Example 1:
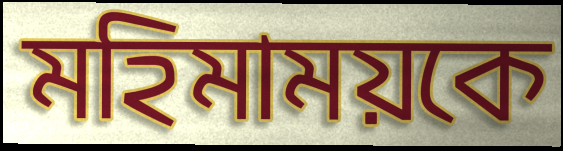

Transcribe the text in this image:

মহিমাময়কে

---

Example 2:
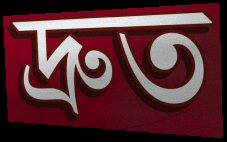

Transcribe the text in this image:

দ্রুত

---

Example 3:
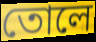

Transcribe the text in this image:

তোলে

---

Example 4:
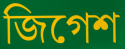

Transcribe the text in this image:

জিগেশ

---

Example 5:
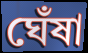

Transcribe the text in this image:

ঘেঁষা